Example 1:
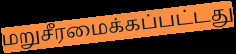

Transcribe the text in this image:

மறுசீரமைக்கப்பட்டது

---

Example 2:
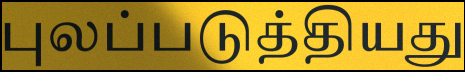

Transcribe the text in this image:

புலப்படுத்தியது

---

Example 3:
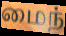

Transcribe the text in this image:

மைந்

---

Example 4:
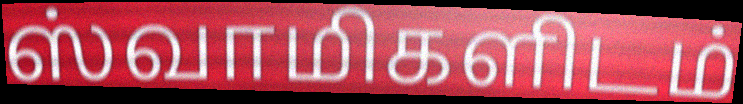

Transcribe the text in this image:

ஸ்வாமிகளிடம்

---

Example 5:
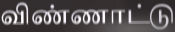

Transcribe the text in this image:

விண்ணாட்டு